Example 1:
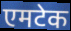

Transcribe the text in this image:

एमटेक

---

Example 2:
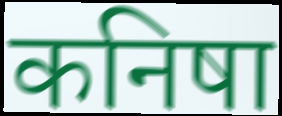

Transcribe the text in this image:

कनिषा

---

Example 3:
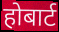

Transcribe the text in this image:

होबार्ट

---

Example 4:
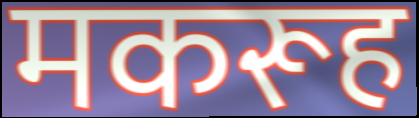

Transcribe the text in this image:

मकरूह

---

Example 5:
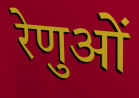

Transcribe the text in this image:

रेणुओं